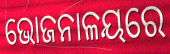
ଭୋଜନାଳୟରେ